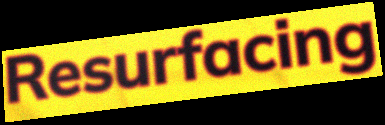
Resurfacing